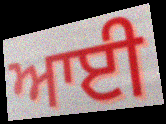
ਆਈ